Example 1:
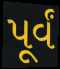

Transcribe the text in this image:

પૂર્વં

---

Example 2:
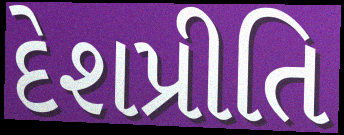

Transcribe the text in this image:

દેશપ્રીતિ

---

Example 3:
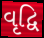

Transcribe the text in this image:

વૃદ્વિ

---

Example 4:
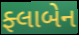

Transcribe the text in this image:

ફ્લાબેન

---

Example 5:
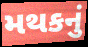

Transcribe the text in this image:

મથકનું